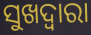
ସୁଖଦ୍ଵାରା